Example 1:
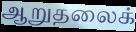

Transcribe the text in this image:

ஆறுதலைக்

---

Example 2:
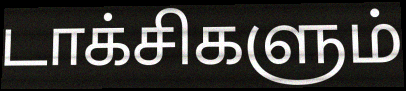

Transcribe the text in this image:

டாக்சிகளும்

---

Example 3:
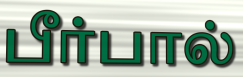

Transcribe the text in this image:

பீர்பால்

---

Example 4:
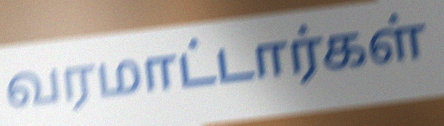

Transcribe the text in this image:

வரமாட்டார்கள்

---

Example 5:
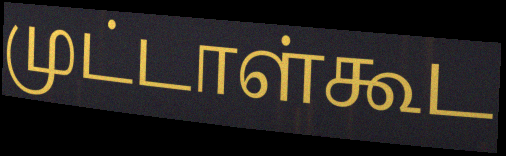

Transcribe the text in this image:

முட்டாள்கூட